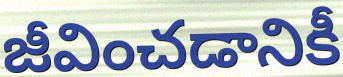
జీవించడానికీ